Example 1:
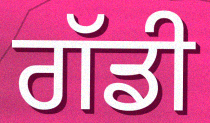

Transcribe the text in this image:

ਗੱਡੀ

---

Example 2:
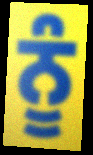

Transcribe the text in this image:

ਨੂੰ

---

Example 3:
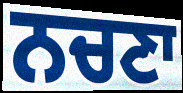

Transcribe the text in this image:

ਨਚਣਾ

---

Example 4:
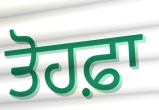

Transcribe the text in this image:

ਤੋਹਫ਼ਾ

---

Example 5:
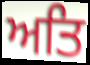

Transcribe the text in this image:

ਅਤਿ